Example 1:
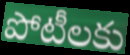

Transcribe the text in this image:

పోటీలకు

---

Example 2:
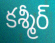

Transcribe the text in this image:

కశ్మీర్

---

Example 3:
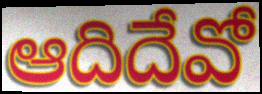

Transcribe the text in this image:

ఆదిదేవో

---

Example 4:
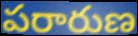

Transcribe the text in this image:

పరారుణ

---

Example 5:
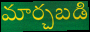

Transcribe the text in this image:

మార్చబడి